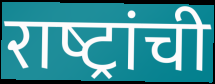
राष्ट्रांची